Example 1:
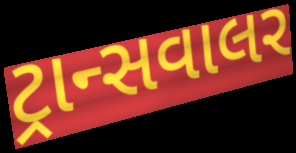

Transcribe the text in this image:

ટ્રાન્સવાલર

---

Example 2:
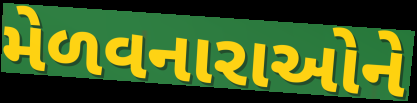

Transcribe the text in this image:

મેળવનારાઓને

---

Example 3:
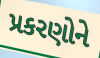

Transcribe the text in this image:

પ્રકરણોને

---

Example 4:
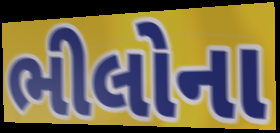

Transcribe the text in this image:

ભીલોના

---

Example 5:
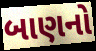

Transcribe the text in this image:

બાણનો